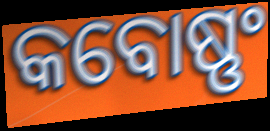
କବୋଷ୍ଣଂ